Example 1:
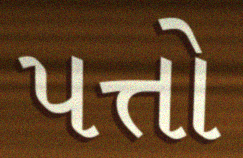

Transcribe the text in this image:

પત્તો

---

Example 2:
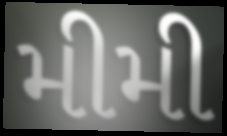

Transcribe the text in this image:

મીમી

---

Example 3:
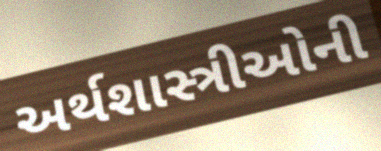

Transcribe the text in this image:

અર્થશાસ્ત્રીઓની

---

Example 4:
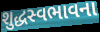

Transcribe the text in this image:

શુદ્ધસ્વભાવના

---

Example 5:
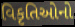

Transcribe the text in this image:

વિકૃતિઓનો